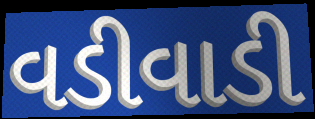
વડીવાડી